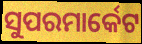
ସୁପରମାର୍କେଟ